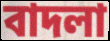
বাদলা